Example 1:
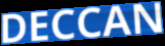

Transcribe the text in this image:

DECCAN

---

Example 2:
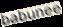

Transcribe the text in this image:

babunee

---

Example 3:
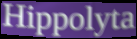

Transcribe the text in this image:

Hippolyta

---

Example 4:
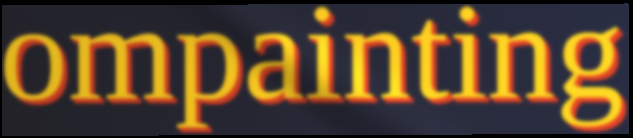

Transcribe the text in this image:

ompainting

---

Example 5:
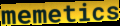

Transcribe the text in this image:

memetics